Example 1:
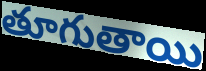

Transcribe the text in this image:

తూగుతాయి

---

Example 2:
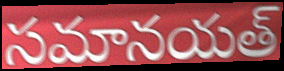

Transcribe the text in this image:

సమానయత్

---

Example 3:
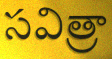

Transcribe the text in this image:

సవిత్రా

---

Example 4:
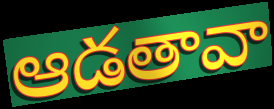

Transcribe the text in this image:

ఆడతావా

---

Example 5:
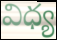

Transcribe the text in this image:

విధ్య